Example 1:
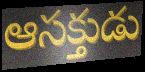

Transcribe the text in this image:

ఆసక్తుడు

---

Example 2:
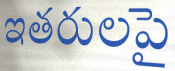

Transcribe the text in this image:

ఇతరులపై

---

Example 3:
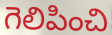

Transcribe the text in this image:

గెలిపించి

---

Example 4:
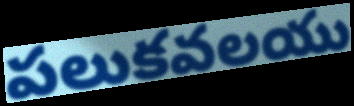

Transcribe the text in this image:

పలుకవలయు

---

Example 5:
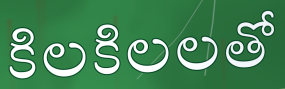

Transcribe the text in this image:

కిలకిలలతో